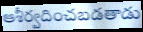
ఆశీర్వదించబడతాడు